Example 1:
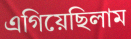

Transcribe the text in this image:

এগিয়েছিলাম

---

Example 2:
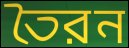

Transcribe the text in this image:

তৈরন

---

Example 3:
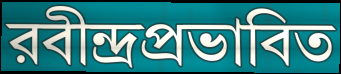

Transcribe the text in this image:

রবীন্দ্রপ্রভাবিত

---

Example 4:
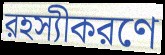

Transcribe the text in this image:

রহস্যীকরণে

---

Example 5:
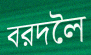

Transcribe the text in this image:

বরদলৈ